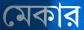
মেকার